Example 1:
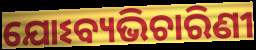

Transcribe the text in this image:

ଯୋଽବ୍ୟଭିଚାରିଣୀ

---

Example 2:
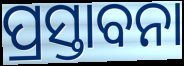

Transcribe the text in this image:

ପ୍ରସ୍ତାବନା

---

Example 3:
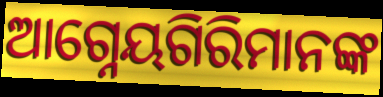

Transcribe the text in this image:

ଆଗ୍ନେୟଗିରିମାନଙ୍କ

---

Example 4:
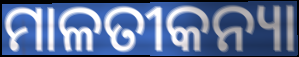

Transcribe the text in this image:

ମାଳତୀକନ୍ୟା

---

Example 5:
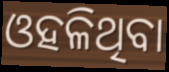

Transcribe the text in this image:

ଓହଳିଥିବା